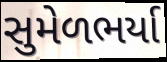
સુમેળભર્યા